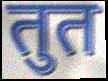
तुत